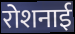
रोशनाई